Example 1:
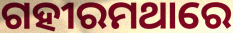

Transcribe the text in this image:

ଗହୀରମଥାରେ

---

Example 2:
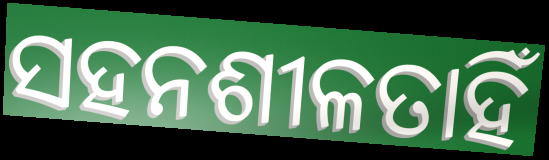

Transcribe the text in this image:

ସହନଶୀଳତାହିଁ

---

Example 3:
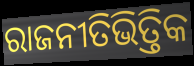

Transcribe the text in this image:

ରାଜନୀତିଭିତ୍ତିକ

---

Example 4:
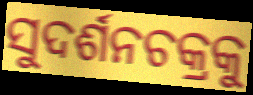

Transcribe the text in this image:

ସୁଦର୍ଶନଚକ୍ରକୁ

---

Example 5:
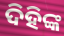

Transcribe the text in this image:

ଦିହିଙ୍କ